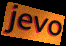
jevo